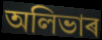
অলিভাৰ